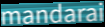
mandarai